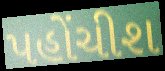
પહોંચીશ